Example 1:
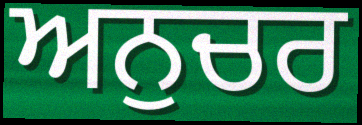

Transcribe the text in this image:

ਅਨੁਚਰ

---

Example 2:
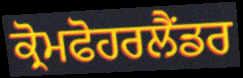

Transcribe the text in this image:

ਕ੍ਰੋਮਫੋਹਰਲੈਂਡਰ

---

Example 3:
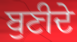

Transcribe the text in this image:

ਬੁਣੀਦੇ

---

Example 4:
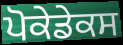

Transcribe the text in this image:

ਪੋਕੇਡੇਕਸ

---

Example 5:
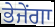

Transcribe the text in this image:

ਭੇਜੇਂਗਾ